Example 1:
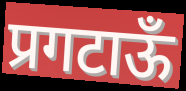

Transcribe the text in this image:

प्रगटाऊँ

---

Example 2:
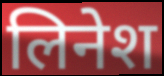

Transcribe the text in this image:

लिनेश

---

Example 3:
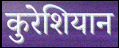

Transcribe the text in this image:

कुरेशियान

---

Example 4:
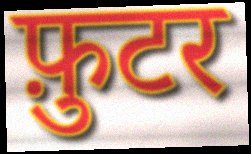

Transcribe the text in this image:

फ़ुटर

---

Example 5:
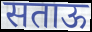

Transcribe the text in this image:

सताऊ